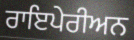
ਰਾਇਪੇਰੀਅਨ